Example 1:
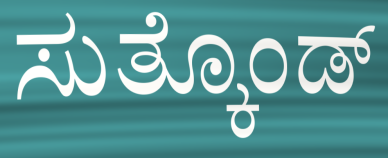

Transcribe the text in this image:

ಸುತ್ಕೊಂಡ್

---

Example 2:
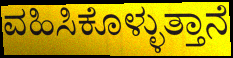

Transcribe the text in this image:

ವಹಿಸಿಕೊಳ್ಳುತ್ತಾನೆ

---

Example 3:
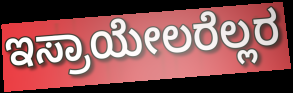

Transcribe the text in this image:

ಇಸ್ರಾಯೇಲರೆಲ್ಲರ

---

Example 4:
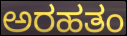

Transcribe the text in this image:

ಅರಹತಂ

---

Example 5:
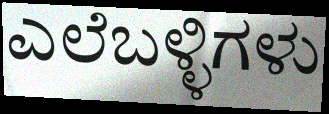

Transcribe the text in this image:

ಎಲೆಬಳ್ಳಿಗಳು